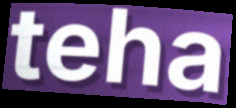
teha